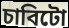
চাবিটো